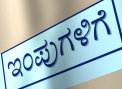
ಇಂಪುಗಳಿಗೆ